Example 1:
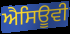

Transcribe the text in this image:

ਐਸਿਊਵੀ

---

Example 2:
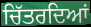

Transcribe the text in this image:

ਚਿੱਤਰਦਿਆਂ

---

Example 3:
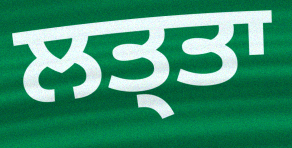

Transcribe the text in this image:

ਲਤ੍ਤਾ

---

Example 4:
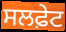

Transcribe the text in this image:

ਸਲਫ਼ੇਟ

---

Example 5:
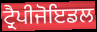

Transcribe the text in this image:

ਟ੍ਰੈਪੀਜੋਇਡਲ